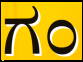
ಗಂ